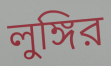
লুঙ্গির